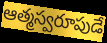
ఆత్మస్వరూపుడే